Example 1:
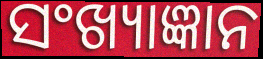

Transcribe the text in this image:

ସଂଖ୍ୟାଜ୍ଞାନ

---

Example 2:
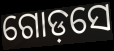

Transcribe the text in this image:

ଗୋଡ଼ସେ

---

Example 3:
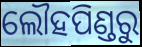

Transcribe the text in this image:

ଲୌହପିଣ୍ଡରୁ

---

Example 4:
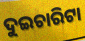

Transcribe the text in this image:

ଦୁଇଚାରିଟା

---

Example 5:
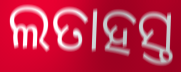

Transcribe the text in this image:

ଲତାହସ୍ତ